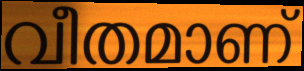
വീതമാണ്